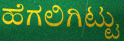
ಹೆಗಲಿಗಿಟ್ಟು